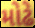
મોઢે